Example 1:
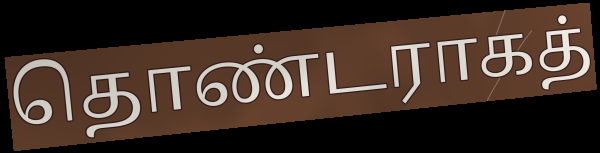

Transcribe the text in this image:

தொண்டராகத்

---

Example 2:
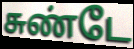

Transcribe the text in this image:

சுண்டே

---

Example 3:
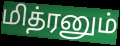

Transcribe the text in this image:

மித்ரனும்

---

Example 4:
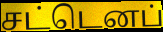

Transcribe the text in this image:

சட்டெனப்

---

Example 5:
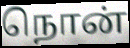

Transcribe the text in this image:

நொன்